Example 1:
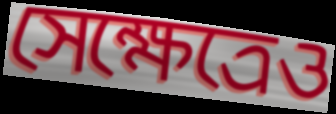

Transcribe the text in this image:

সেক্ষেত্রেও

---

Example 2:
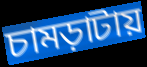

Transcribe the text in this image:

চামড়াটায়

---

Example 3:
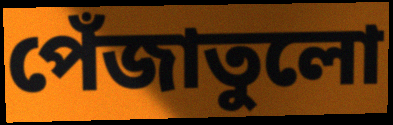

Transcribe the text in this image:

পেঁজাতুলো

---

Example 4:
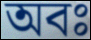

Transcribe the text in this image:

অবঃ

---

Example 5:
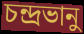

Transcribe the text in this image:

চন্দ্রভানু